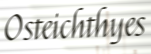
Osteichthyes